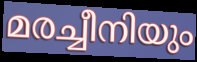
മരച്ചീനിയും